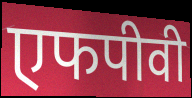
एफपीवी